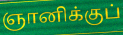
ஞானிக்குப்